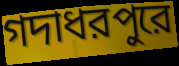
গদাধরপুরে